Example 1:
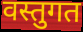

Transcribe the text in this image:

वस्तुगत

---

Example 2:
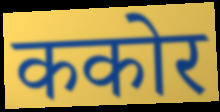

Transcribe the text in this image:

ककोर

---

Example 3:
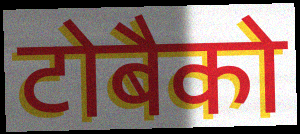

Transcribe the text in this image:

टोबैको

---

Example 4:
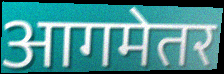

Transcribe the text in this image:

आगमेतर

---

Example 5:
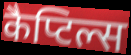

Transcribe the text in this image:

कैप्टिल्स